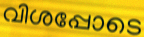
വിശപ്പോടെ